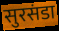
सुरसंडा